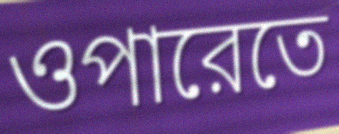
ওপারেতে